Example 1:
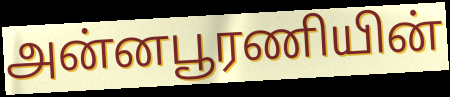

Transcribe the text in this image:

அன்னபூரணியின்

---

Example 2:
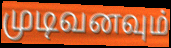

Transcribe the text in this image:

முடிவனவும்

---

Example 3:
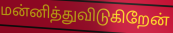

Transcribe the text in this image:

மன்னித்துவிடுகிறேன்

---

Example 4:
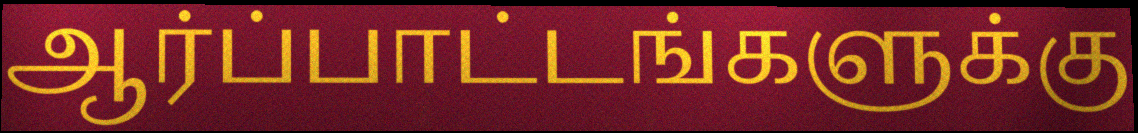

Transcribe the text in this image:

ஆர்ப்பாட்டங்களுக்கு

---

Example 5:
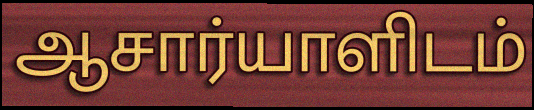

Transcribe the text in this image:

ஆசார்யாளிடம்